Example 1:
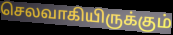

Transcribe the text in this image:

செலவாகியிருக்கும்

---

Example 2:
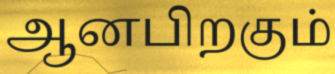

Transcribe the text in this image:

ஆனபிறகும்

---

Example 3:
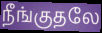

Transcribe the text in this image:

நீங்குதலே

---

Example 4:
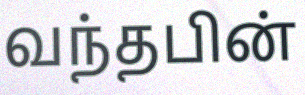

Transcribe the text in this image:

வந்தபின்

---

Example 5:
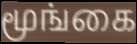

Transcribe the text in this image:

மூங்கை